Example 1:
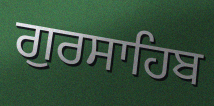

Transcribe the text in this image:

ਗੁਰਸਾਹਿਬ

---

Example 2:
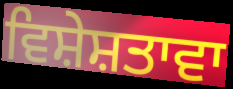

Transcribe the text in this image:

ਵਿਸ਼ੇਸ਼ਤਾਵਾ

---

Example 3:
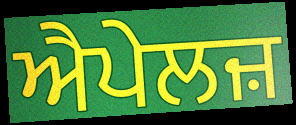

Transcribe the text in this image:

ਐਪੇਲਜ਼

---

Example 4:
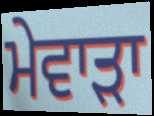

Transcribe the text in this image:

ਮੇਵਾੜਾ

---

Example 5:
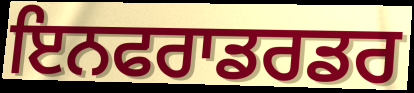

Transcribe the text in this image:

ਇਨਫਰਾਡਰਡਰ